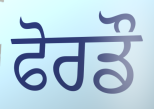
ਫੋਰਡੌ